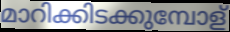
മാറിക്കിടക്കുമ്പോള്